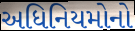
અધિનિયમોનો